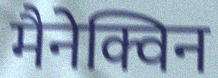
मैनेक्विन